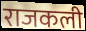
राजकली